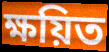
ক্ষয়িত